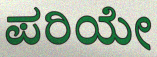
ಪರಿಯೇ